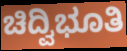
ಚಿದ್ವಿಭೂತಿ